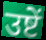
उष्टें